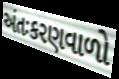
અંતઃકરણવાળો